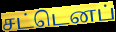
சட்டெனப்